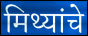
मिथ्यांचे